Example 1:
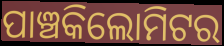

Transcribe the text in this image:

ପାଞ୍ଚକିଲୋମିଟର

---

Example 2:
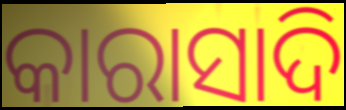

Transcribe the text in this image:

କାରାସାଦି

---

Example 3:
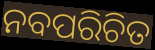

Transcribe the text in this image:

ନବପରିଚିତ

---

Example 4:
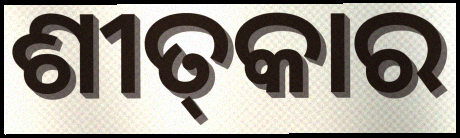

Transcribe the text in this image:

ଶୀତ୍‌କାର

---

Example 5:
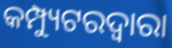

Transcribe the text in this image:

କମ୍ପ୍ୟୁଟରଦ୍ୱାରା